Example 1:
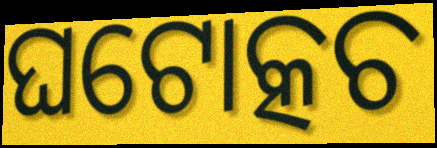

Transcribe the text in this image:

ଘଟୋତ୍କଚ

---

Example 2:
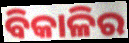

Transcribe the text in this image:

ବିକାଳିର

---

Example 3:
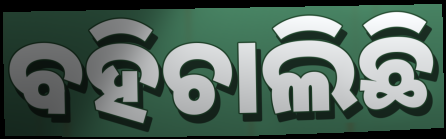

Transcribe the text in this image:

ବହିଚାଲିଛି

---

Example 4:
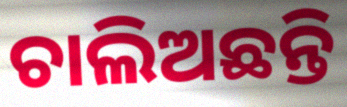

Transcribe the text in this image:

ଚାଲିଅଛନ୍ତି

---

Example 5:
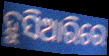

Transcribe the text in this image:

ହୁସିଆରିରେ